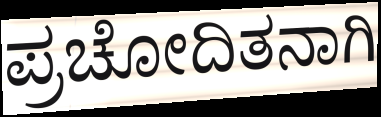
ಪ್ರಚೋದಿತನಾಗಿ